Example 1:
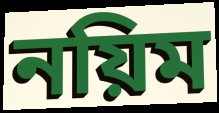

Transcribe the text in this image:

নয়িম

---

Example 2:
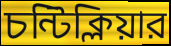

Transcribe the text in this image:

চন্টিক্লিয়ার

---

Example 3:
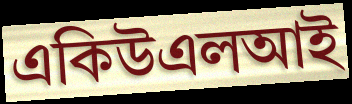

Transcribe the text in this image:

একিউএলআই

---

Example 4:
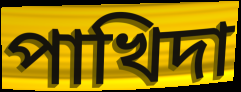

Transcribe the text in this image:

পাখিদা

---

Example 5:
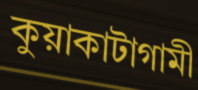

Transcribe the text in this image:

কুয়াকাটাগামী